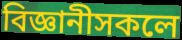
বিজ্ঞানীসকলে